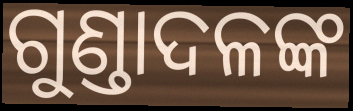
ଗୁଣ୍ଡାଦଳଙ୍କ